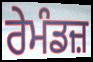
ਰੇਮੰਡਜ਼